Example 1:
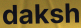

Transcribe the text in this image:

daksh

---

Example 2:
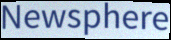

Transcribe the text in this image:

Newsphere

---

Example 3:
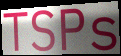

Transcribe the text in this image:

TSPs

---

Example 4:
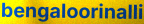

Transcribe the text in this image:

bengaloorinalli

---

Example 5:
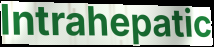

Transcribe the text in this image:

Intrahepatic